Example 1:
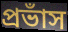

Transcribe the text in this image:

প্রভাঁস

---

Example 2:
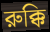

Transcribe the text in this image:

রুক্কি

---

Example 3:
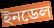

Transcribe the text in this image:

ইনডেল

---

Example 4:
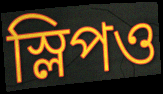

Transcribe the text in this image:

স্লিপও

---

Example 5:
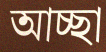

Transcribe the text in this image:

আচ্ছা